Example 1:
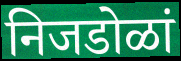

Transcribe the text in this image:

निजडोळां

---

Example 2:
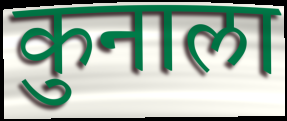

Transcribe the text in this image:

कुनाला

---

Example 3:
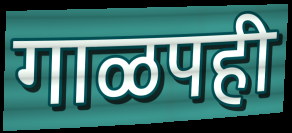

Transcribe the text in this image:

गाळपही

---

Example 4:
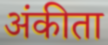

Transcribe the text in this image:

अंकीता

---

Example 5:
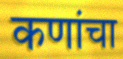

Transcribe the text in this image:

कणांचा